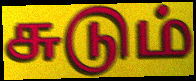
சுடும்